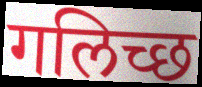
गलिच्छ